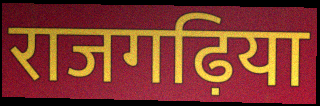
राजगढ़िया